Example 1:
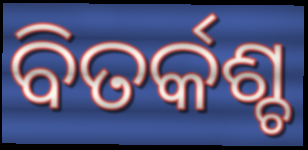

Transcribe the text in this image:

ବିତର୍କଶ୍ଚ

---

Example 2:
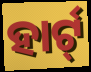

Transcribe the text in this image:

ହାର୍ଟ୍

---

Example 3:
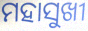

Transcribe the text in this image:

ମହାସୁଖୀ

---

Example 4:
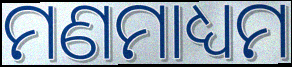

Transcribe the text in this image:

ମଣମାଧ୍ୟମ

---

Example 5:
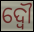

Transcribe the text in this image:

ଦ୍ଵୌ